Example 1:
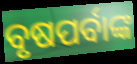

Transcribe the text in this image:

ବୃଷପର୍ବାଙ୍କ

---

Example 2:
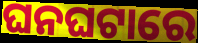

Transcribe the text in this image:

ଘନଘଟାରେ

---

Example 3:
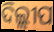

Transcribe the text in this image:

ଦିଲ୍ଲୀପ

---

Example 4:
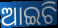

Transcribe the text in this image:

ଆଇଚି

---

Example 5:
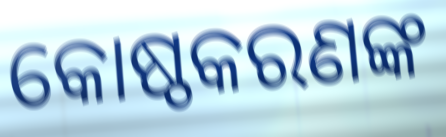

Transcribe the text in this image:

କୋଷ୍ଠକରଣଙ୍କ